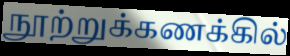
நூற்றுக்கணக்கில்